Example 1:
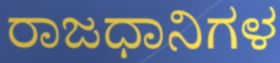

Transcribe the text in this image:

ರಾಜಧಾನಿಗಳ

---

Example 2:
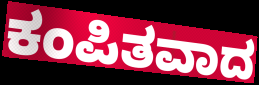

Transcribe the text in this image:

ಕಂಪಿತವಾದ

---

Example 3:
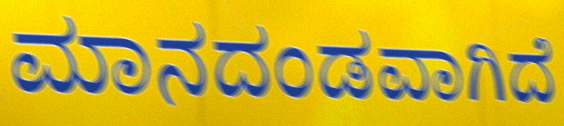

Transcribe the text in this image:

ಮಾನದಂಡವಾಗಿದೆ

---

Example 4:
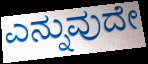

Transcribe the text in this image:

ಎನ್ನುವುದೇ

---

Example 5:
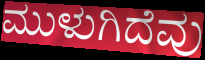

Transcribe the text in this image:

ಮುಳುಗಿದೆವು